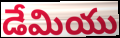
డేమియు